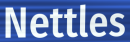
Nettles